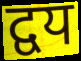
द्वय